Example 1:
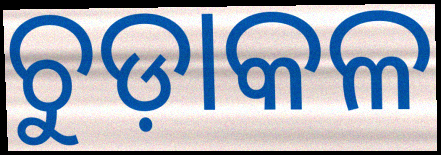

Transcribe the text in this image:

ଚୁଡ଼ାକଳ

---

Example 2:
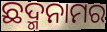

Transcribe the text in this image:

ଛଦ୍ମନାମର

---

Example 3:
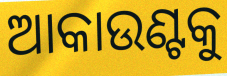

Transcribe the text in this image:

ଆକାଉଣ୍ଟକୁ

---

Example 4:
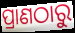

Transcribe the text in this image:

ପ୍ରାଣଠାରୁ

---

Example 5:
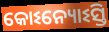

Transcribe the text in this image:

କୋଽନ୍ୟୋଽସ୍ତି